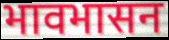
भावभासन